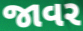
જાવર